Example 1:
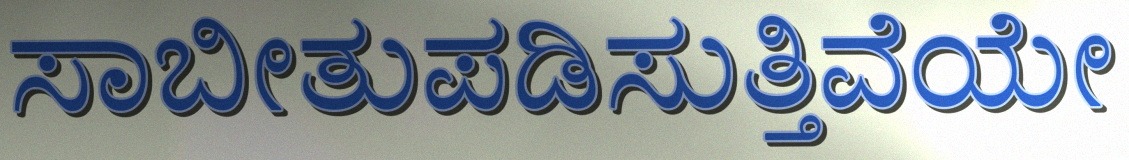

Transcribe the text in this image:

ಸಾಬೀತುಪಡಿಸುತ್ತಿವೆಯೇ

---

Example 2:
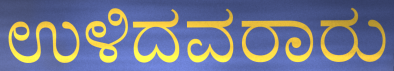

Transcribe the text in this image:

ಉಳಿದವರಾರು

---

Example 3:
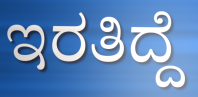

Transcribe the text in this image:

ಇರತಿದ್ದೆ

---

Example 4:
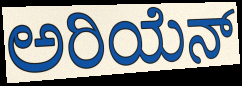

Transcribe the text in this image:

ಅರಿಯೆನ್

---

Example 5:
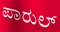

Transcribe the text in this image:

ಪಾರುಲ್